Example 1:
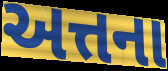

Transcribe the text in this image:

અત્તના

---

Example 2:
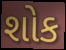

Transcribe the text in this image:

શોક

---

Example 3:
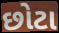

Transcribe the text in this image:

છોટા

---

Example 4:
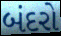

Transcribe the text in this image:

બંદરો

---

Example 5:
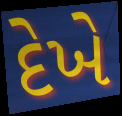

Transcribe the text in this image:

દેખે